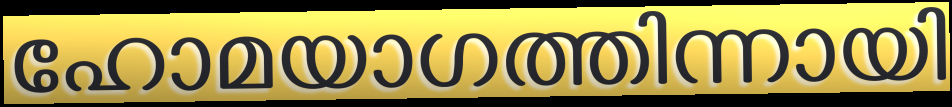
ഹോമയാഗത്തിന്നായി